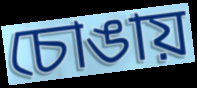
চোঙায়